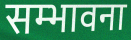
सम्भावना